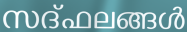
സദ്ഫലങ്ങൾ